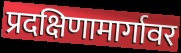
प्रदक्षिणामार्गावर